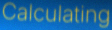
Calculating